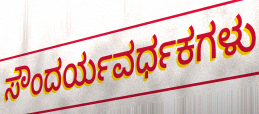
ಸೌಂದರ್ಯವರ್ಧಕಗಳು